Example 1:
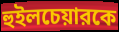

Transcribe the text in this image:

হুইলচেয়ারকে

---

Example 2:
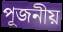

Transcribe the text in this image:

পূজনীয়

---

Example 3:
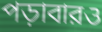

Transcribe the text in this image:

পড়াবারও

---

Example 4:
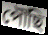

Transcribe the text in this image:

পৌঁছি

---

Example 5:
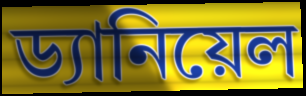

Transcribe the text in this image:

ড্যানিয়েল